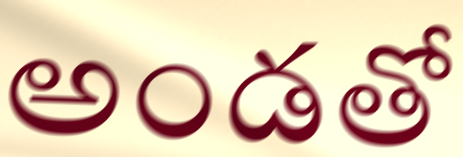
అండతో